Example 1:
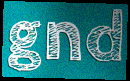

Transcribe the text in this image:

gnd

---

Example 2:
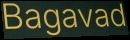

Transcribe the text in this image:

Bagavad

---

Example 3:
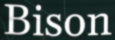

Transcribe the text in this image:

Bison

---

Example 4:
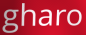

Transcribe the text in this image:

gharo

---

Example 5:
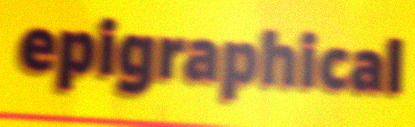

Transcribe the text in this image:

epigraphical